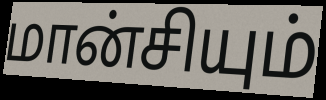
மான்சியும்